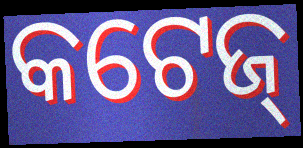
କଟେଜ୍